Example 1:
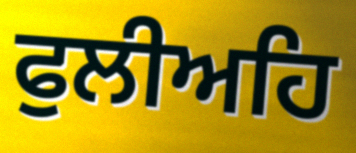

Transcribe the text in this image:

ਫੁਲੀਅਹਿ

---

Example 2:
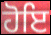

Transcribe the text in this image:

ਹੋਇ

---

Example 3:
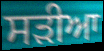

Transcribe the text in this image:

ਸੜੀਆ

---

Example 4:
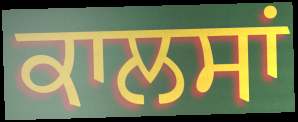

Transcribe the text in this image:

ਕਾਲਸਾਂ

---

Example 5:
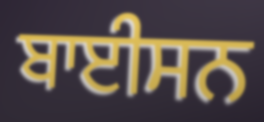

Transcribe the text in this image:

ਬਾਈਸਨ